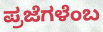
ಪ್ರಜೆಗಳೆಂಬ